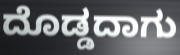
ದೊಡ್ಡದಾಗು